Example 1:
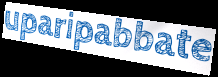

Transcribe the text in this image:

uparipabbate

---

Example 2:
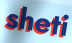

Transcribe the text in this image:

sheti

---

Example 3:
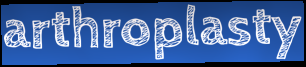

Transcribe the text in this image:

arthroplasty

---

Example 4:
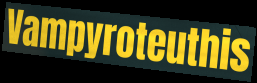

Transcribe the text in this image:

Vampyroteuthis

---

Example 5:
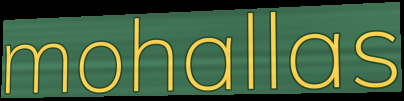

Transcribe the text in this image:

mohallas